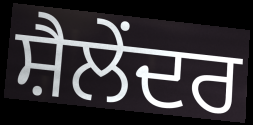
ਸ਼ੈਲੇਂਦਰ